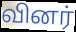
வினர்